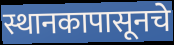
स्थानकापासूनचे